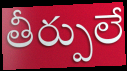
తీర్పులే